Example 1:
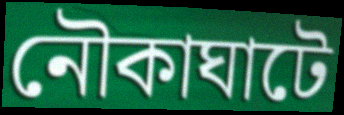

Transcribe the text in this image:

নৌকাঘাটে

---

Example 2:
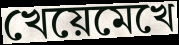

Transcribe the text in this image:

খেয়েমেখে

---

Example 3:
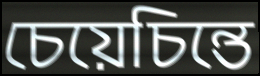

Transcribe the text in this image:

চেয়েচিন্তে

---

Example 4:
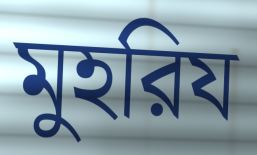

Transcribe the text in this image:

মুহরিয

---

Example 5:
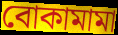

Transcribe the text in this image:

বোকামামা